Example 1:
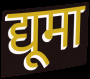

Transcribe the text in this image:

द्यूमा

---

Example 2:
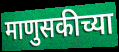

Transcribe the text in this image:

माणुसकीच्या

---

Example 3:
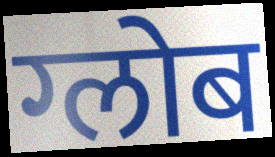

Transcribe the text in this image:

ग्लोब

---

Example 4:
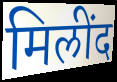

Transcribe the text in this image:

मिलींद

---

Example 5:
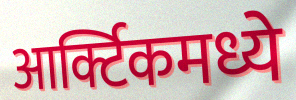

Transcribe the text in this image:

आर्क्टिकमध्ये